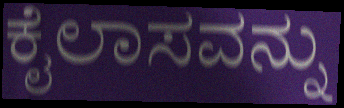
ಕೈಲಾಸವನ್ನು